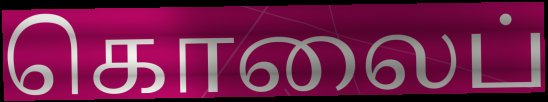
கொலைப்